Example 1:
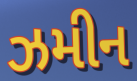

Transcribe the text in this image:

ઝમીન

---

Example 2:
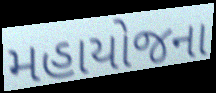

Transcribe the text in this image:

મહાયોજના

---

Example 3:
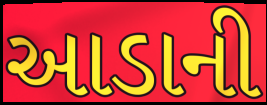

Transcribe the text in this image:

આડાની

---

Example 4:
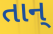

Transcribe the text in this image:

તાન્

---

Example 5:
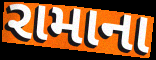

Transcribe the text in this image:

રામાના